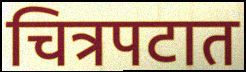
चित्रपटात